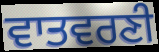
ਵਾਤਵਰਣੀ